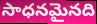
సాధనమైనది